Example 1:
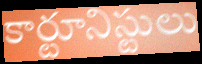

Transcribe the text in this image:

కార్టూనిస్టులు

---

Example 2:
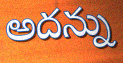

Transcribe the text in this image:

అదన్ను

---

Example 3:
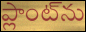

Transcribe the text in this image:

ప్లాంట్‌ను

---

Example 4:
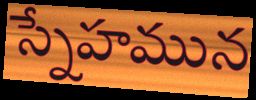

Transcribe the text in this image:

స్నేహమున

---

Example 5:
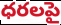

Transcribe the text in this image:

ధరలపై